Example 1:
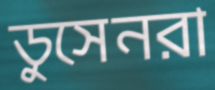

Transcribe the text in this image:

ডুসেনরা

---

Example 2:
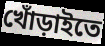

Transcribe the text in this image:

খোঁড়াইতে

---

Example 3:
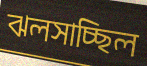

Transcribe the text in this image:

ঝলসাচ্ছিল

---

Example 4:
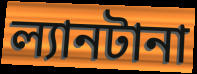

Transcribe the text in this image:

ল্যানটানা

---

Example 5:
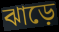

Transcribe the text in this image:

ঝাড়ে